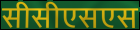
सीसीएसएस